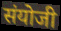
संयोजी